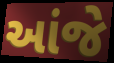
આંજે